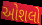
ઓશલો